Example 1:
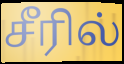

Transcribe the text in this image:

சீரில்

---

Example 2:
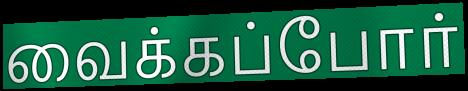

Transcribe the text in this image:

வைக்கப்போர்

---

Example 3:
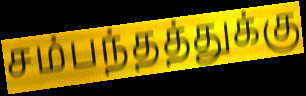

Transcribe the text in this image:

சம்பந்தத்துக்கு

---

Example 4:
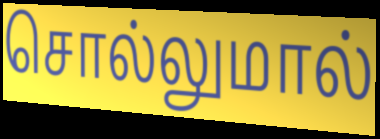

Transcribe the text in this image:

சொல்லுமால்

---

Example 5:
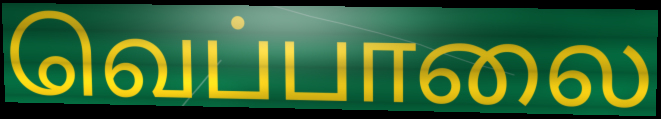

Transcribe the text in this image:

வெப்பாலை